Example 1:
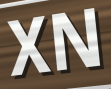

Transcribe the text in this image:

XN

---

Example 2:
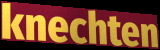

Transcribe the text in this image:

knechten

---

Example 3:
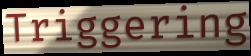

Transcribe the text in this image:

Triggering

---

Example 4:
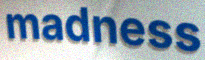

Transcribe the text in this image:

madness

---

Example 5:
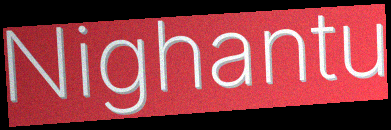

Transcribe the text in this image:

Nighantu